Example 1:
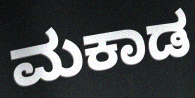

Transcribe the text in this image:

ಮಕಾಡ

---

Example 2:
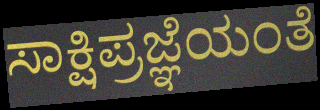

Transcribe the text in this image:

ಸಾಕ್ಷಿಪ್ರಜ್ಞೆಯಂತೆ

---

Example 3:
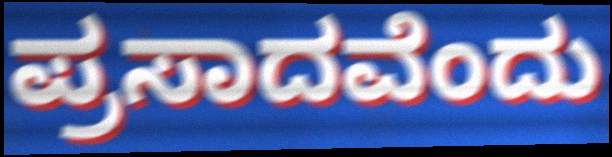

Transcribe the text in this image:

ಪ್ರಸಾದವೆಂದು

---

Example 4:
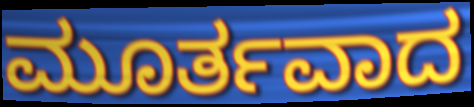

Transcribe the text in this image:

ಮೂರ್ತವಾದ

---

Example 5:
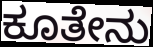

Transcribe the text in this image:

ಕೂತೇನು